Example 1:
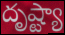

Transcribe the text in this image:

దృష్ట్యా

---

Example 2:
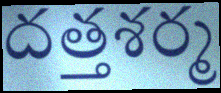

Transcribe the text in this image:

దత్తశర్మ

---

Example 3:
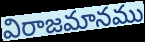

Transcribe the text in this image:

విరాజమానము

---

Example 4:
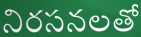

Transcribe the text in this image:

నిరసనలతో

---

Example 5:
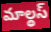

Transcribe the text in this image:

మాల్థస్